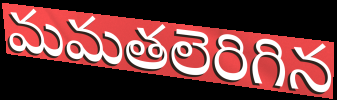
మమతలెరిగిన